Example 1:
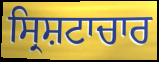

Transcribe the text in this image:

ਸ੍ਰਿਸ਼ਟਾਚਾਰ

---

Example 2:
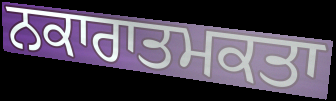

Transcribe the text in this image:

ਨਕਾਰਾਤਮਕਤਾ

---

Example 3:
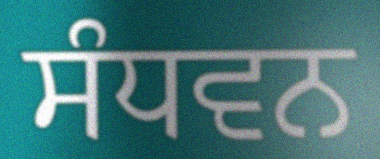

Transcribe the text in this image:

ਸੰਧਵਨ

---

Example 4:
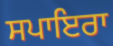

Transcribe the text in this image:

ਸਪਾਇਰਾ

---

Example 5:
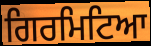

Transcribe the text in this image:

ਗਿਰਮਿਟਿਆ